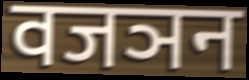
वजञन